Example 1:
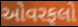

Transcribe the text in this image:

ઓવરફલો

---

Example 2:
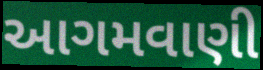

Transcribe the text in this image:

આગમવાણી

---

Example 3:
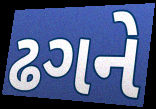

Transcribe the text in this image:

ઢગને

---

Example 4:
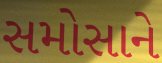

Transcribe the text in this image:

સમોસાને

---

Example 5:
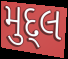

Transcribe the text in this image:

મુદ્લ